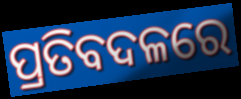
ପ୍ରତିବଦଳରେ